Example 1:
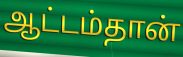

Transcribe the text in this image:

ஆட்டம்தான்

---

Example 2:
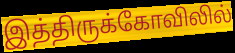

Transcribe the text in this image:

இத்திருக்கோவிலில்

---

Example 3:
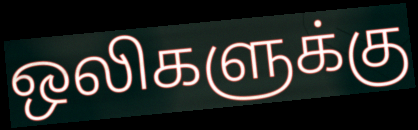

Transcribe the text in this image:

ஒலிகளுக்கு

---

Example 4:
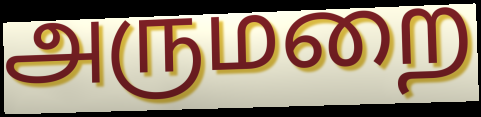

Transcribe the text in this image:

அருமறை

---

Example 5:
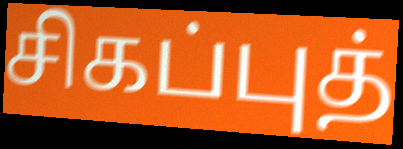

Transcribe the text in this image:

சிகப்புத்